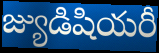
జ్యుడిషియరీ